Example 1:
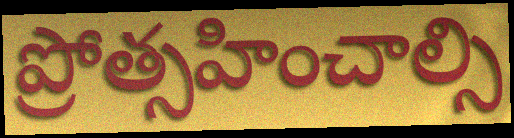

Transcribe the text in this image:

ప్రోత్సహించాల్సి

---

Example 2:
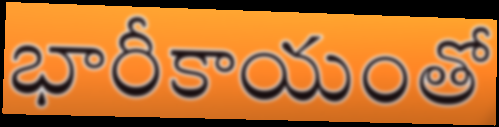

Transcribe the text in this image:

భారీకాయంతో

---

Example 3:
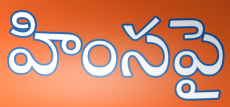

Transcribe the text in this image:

హింసపై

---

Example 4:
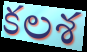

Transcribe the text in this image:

కలశ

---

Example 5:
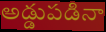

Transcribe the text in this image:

అడ్డుపడినా